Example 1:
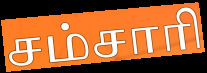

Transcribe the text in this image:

சம்சாரி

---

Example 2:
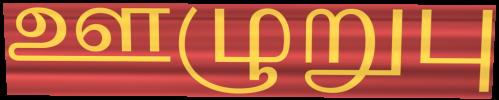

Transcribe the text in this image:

ஊழுறுபு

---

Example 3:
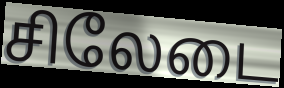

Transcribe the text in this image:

சிலேடை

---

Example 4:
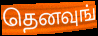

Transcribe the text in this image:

தெனவுங்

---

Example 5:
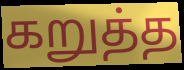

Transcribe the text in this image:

கறுத்த